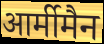
आर्मीमैन